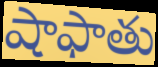
షాఫాతు